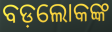
ବଡ଼ଲୋକଙ୍କ